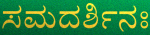
ಸಮದರ್ಶಿನಃ